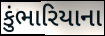
કુંભારિયાના